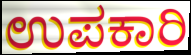
ಉಪಕಾರಿ